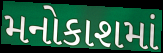
મનોકાશમાં